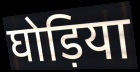
घोड़िया